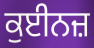
ਕੁਈਨਜ਼